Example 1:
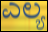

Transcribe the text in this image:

ಎಲ್ಯ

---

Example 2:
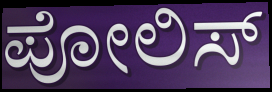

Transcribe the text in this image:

ಪೋಲಿಸ್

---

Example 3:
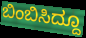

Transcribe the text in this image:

ಬಿಂಬಿಸಿದ್ದೂ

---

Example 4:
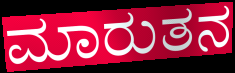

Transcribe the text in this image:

ಮಾರುತನ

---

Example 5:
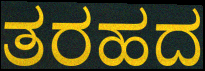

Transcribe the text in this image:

ತರಹದ